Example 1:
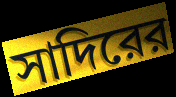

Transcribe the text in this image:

সাদিরের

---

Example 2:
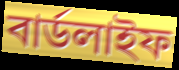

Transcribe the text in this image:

বার্ডলাইফ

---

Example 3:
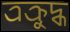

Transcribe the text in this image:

ত্রক্রুদ্ধ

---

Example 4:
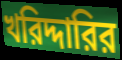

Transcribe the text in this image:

খরিদ্দারির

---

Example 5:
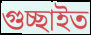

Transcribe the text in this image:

গুচ্ছাইত